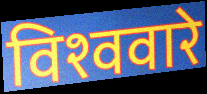
विश्ववारे